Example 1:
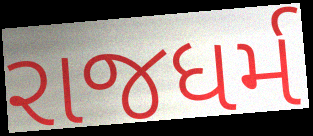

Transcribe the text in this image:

રાજધર્મ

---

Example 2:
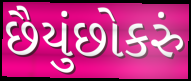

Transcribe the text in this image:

છૈયુંછોકરું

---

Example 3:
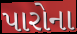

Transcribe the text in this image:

પારોના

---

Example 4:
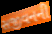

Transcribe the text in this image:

સજીવનની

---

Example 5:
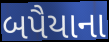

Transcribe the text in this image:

બપૈયાના